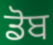
ਡੋਬ